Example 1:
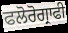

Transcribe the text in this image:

ਫਲੋਰੋਗ੍ਰਾਫੀ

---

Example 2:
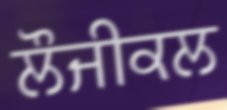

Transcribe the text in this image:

ਲੌਜੀਕਲ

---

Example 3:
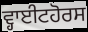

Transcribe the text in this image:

ਵ੍ਹਾਈਟਹੋਰਸ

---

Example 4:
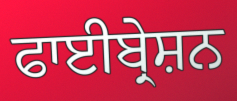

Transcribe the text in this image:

ਫਾਈਬ੍ਰੇਸ਼ਨ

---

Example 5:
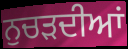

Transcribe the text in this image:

ਨੁਚੜਦੀਆਂ